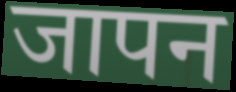
जापन